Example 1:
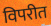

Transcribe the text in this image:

विपरीत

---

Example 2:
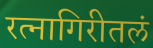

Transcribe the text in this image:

रत्नागिरीतलं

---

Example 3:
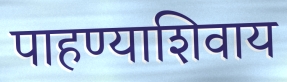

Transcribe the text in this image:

पाहण्याशिवाय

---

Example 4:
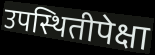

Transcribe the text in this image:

उपस्थितीपेक्षा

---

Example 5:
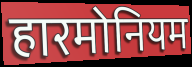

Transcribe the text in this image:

हारमोनियम